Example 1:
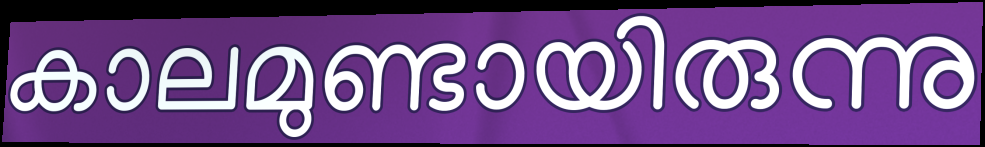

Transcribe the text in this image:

കാലമുണ്ടായിരുന്നു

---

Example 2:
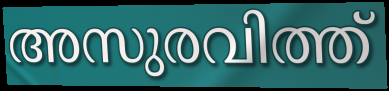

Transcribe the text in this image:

അസുരവിത്ത്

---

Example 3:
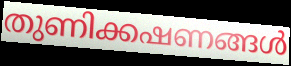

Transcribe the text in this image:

തുണിക്കഷണങ്ങൾ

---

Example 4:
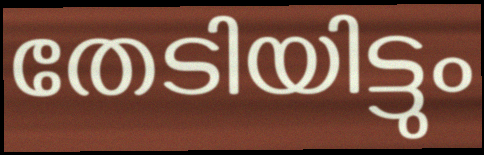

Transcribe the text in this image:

തേടിയിട്ടും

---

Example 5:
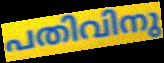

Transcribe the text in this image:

പതിവിനു